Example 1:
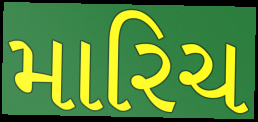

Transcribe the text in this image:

મારિચ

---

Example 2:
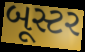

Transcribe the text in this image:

બૂસ્ટર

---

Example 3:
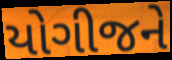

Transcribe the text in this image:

યોગીજને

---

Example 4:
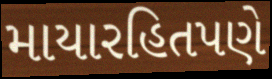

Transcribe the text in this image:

માયારહિતપણે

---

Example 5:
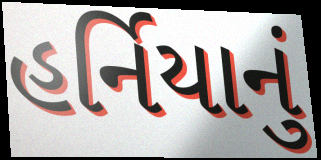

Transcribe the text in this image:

હર્નિયાનું